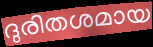
ദുരിതശമായ